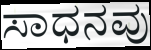
ಸಾಧನವು